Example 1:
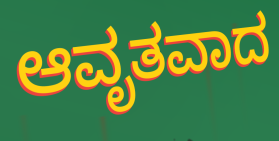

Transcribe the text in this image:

ಆವೃತವಾದ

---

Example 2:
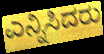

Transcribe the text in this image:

ಎನ್ನಿಸಿದರು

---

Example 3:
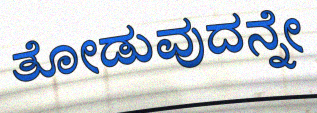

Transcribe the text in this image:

ತೋಡುವುದನ್ನೇ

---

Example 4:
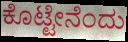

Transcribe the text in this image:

ಕೊಟ್ಟೇನೆಂದು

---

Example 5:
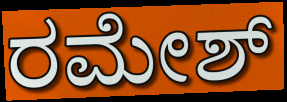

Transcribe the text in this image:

ರಮೇಶ್